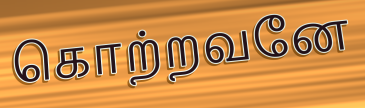
கொற்றவனே